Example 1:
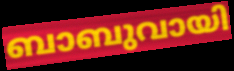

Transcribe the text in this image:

ബാബുവായി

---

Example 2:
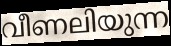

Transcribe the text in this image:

വീണലിയുന്ന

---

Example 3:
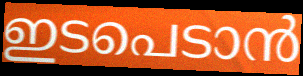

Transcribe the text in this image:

ഇടപെടാൻ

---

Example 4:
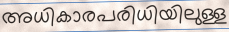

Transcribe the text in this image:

അധികാരപരിധിയിലുള്ള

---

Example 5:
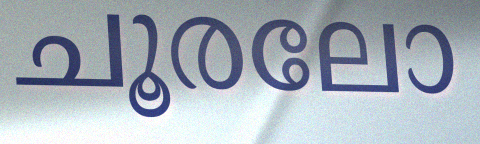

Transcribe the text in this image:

ചൂരലോ